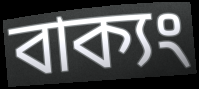
বাক্যং